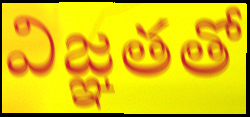
విజ్ఞతతో